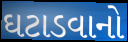
ઘટાડવાનો